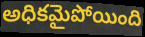
అధికమైపోయింది